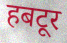
हबटूर